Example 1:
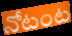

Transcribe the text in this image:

నోటంట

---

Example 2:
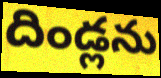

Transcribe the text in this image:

దిండ్లను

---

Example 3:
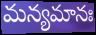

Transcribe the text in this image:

మన్యమానః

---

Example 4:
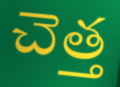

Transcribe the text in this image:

చెత్త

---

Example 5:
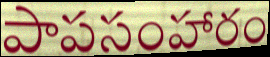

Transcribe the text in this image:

పాపసంహారం